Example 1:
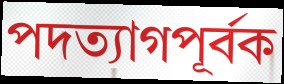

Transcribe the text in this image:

পদত্যাগপূর্বক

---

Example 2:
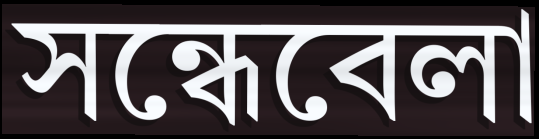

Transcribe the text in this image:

সন্ধেবেলা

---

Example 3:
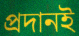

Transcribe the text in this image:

প্রদানই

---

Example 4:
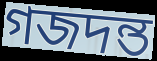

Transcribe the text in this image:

গজদন্ত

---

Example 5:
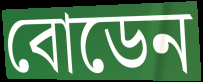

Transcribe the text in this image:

বোডেন